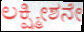
ಲಕ್ಷ್ಮೀಶನೇ